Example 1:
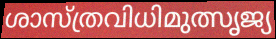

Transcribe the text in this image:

ശാസ്ത്രവിധിമുത്സൃജ്യ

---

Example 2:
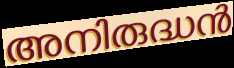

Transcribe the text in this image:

അനിരുദ്ധൻ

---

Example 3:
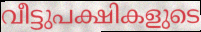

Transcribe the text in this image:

വീട്ടുപക്ഷികളുടെ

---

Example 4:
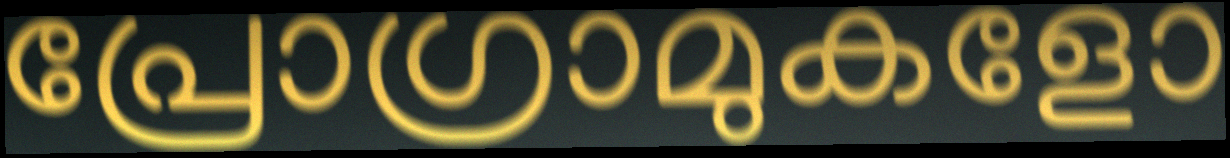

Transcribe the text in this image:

പ്രോഗ്രാമുകളോ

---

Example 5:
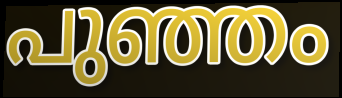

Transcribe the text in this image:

പുഞ്ഞം